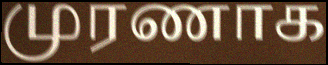
முரணாக